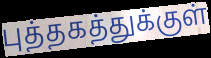
புத்தகத்துக்குள்